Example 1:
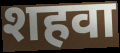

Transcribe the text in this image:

शहवा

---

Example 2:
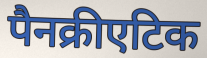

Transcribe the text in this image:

पैनक्रीएटिक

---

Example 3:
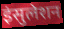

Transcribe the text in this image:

इंसुलेशन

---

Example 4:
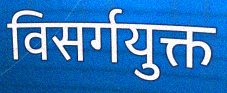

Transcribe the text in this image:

विसर्गयुक्त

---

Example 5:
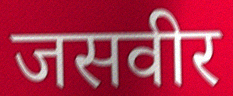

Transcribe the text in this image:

जसवीर